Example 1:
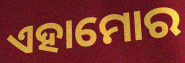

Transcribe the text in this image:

ଏହାମୋର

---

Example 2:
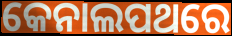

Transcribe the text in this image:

କେନାଲପଥରେ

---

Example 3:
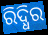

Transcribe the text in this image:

ରିଦ୍ଧିର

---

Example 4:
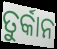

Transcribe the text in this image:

ତୁର୍କାନ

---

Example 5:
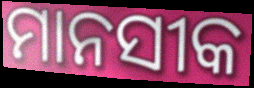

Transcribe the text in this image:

ମାନସୀକ